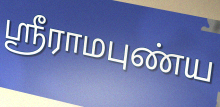
ஸ்ரீராமபுண்ய